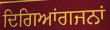
ਦਿਗਿਆਂਗਜਨਾਂ